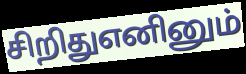
சிறிதுஎனினும்